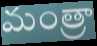
మంత్రా